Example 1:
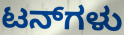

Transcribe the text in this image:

ಟನ್‌ಗಳು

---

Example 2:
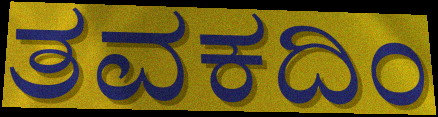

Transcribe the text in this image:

ತವಕದಿಂ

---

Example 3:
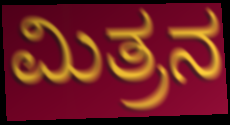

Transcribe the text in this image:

ಮಿತ್ರನ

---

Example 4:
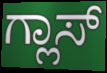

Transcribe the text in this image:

ಗ್ಲಾಸ್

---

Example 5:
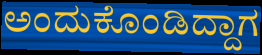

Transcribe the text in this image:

ಅಂದುಕೊಂಡಿದ್ದಾಗ